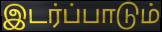
இடர்ப்பாடும்